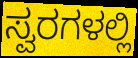
ಸ್ವರಗಳಲ್ಲಿ